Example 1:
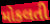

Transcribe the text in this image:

મોકલતી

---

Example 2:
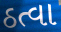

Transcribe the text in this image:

ઠત્વા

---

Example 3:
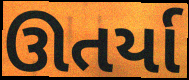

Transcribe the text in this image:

ઊતર્યા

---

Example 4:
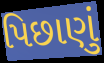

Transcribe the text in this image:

પિછાણું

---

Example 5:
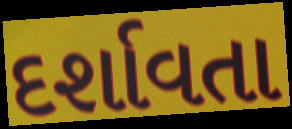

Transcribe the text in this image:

દર્શાવતા